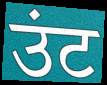
उंट